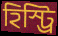
হিস্ট্রি